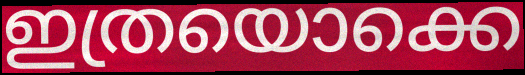
ഇത്രയൊക്കെ